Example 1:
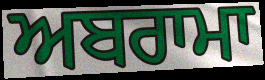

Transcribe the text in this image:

ਅਬਰਾਮਾ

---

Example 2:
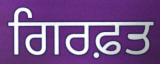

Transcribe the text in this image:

ਗਿਰਫ਼ਤ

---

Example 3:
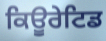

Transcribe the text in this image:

ਕਿਊਰੇਟਿਡ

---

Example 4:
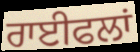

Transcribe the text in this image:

ਰਾਈਫਲਾਂ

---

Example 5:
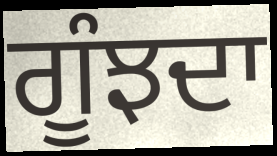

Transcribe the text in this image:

ਗੂੰਝਦਾ